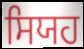
ਸਿਯਹ